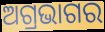
ଅଗ୍ରଭାଗର